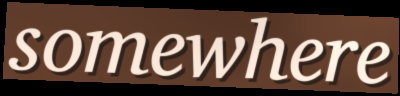
somewhere